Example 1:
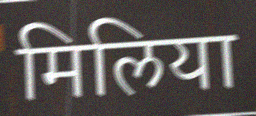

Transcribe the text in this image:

मिलिया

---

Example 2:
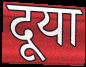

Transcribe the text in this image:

दूया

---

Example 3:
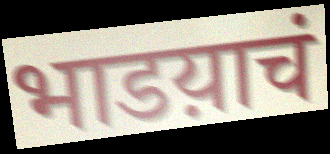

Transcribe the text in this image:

भाडय़ाचं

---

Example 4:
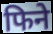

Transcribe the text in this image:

फिने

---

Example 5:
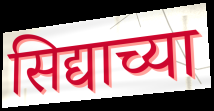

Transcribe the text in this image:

सिद्याच्या